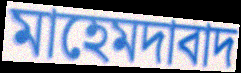
মাহেমদাবাদ